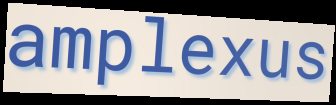
amplexus